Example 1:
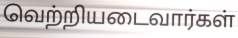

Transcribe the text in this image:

வெற்றியடைவார்கள்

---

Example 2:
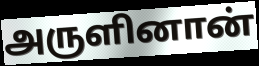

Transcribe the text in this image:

அருளினான்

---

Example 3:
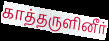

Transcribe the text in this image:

காத்தருளினீர்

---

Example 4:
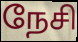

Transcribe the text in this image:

நேசி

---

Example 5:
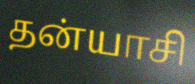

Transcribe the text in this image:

தன்யாசி